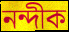
নন্দীক